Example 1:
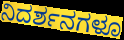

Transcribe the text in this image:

ನಿದರ್ಶನಗಳೂ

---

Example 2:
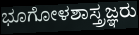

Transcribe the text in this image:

ಭೂಗೋಳಶಾಸ್ತ್ರಜ್ಞರು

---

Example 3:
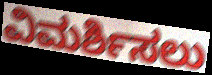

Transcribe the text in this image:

ವಿಮರ್ಶಿಸಲು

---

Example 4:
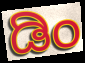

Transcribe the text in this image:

ಡಿಂ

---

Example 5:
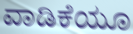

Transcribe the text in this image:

ವಾಡಿಕೆಯೂ